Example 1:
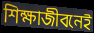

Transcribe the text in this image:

শিক্ষাজীবনেই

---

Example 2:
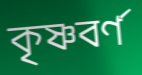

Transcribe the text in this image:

কৃষ্ণবর্ণ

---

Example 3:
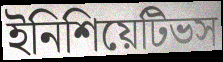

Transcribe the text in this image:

ইনিশিয়েটিভস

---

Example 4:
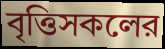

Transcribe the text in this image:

বৃত্তিসকলের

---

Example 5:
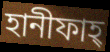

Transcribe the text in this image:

হানীফাহ্